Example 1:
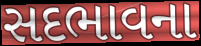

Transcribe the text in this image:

સદભાવના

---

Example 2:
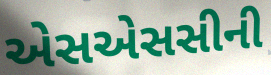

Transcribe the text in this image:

એસએસસીની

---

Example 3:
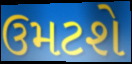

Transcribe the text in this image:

ઉમટશે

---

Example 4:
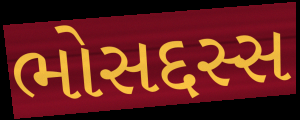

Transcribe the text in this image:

ભોસદ્દસ્સ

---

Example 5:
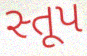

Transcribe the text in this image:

સ્તૂપ